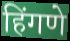
हिंगणे